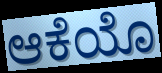
ಆಕೆಯೊ